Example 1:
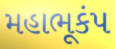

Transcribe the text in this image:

મહાભૂકંપ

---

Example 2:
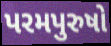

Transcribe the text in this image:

પરમપુરુષો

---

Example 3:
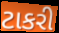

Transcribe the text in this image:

ટાકરી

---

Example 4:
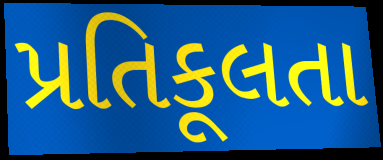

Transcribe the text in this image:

પ્રતિકૂલતા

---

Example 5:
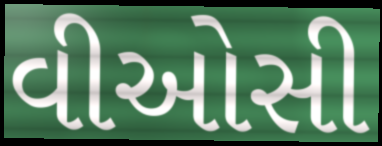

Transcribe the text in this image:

વીઓસી